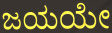
ಜಯಯೇ